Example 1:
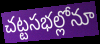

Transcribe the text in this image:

చట్టసభల్లోనూ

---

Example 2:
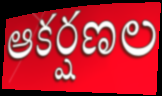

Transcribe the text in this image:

ఆకర్షణల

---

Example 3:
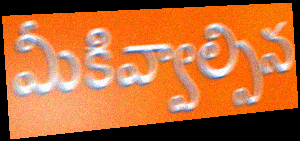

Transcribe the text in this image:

మీకివ్వాల్సిన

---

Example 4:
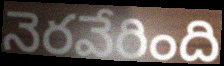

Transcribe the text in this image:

నెరవేరింది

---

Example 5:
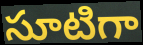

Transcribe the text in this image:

సూటిగా